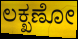
ಲಕ್ಖಣೋ